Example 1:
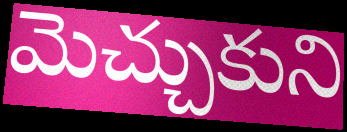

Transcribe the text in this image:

మెచ్చుకుని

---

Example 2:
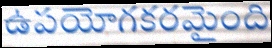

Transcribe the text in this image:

ఉపయోగకరమైంది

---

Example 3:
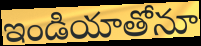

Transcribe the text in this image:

ఇండియాతోనూ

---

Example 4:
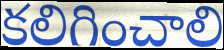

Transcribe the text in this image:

కలిగించాలి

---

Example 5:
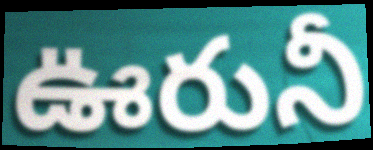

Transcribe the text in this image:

ఊరునీ